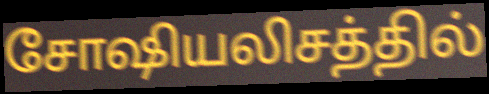
சோஷியலிசத்தில்